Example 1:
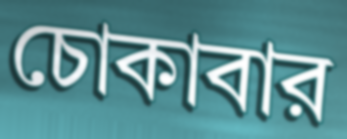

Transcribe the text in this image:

চোকাবার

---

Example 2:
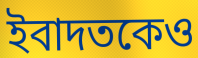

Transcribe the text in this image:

ইবাদতকেও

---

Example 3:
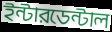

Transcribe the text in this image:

ইন্টারডেন্টাল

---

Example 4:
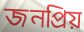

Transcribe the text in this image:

জনপ্রিয়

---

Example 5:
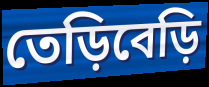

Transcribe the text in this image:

তেড়িবেড়ি